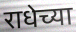
राधेच्या